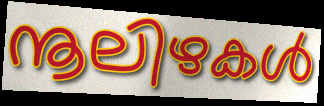
നൂലിഴകൾ